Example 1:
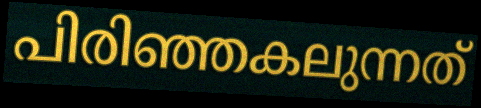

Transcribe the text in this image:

പിരിഞ്ഞകലുന്നത്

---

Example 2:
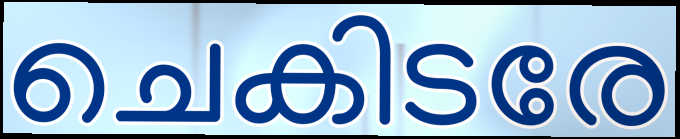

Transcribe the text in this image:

ചെകിടരേ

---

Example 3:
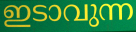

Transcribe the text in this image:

ഇടാവുന്ന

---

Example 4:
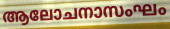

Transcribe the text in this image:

ആലോചനാസംഘം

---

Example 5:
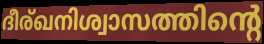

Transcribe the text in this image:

ദീര്ഖനിശ്വാസത്തിന്റെ